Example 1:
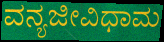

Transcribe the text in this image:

ವನ್ಯಜೀವಿಧಾಮ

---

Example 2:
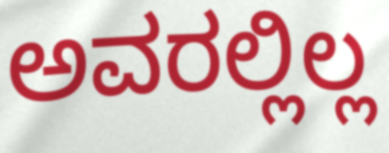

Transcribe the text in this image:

ಅವರಲ್ಲಿಲ್ಲ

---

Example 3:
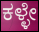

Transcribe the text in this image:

ಕಳ್ಳೇ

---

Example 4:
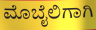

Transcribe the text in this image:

ಮೊಬೈಲಿಗಾಗಿ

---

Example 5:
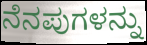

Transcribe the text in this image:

ನೆನಪುಗಳನ್ನು